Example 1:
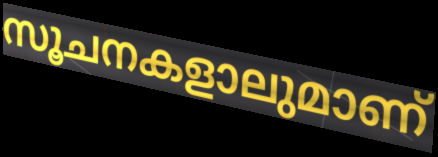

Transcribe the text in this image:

സൂചനകളാലുമാണ്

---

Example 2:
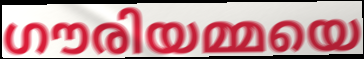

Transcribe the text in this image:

ഗൗരിയമ്മയെ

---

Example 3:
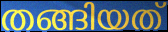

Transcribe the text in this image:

തങ്ങിയത്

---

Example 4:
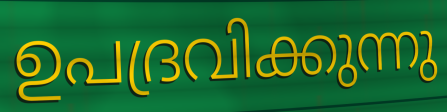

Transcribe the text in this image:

ഉപദ്രവിക്കുന്നു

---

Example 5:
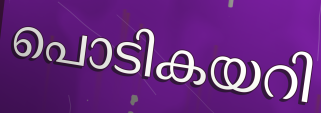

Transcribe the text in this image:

പൊടികയറി